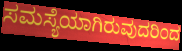
ಸಮಸ್ಯೆಯಾಗಿರುವುದರಿಂದ